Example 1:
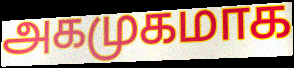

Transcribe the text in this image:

அகமுகமாக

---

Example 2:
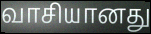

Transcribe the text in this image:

வாசியானது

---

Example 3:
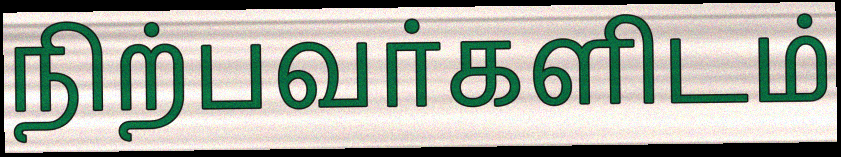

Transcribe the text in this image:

நிற்பவர்களிடம்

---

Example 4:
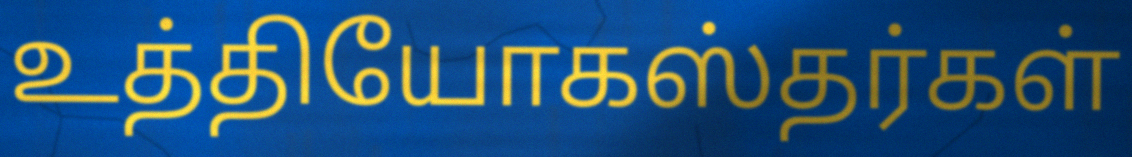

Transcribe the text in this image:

உத்தியோகஸ்தர்கள்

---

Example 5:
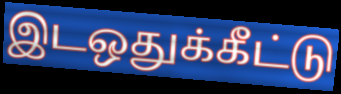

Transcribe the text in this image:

இடஒதுக்கீட்டு